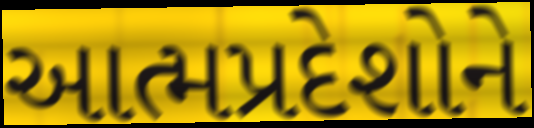
આત્મપ્રદેશોને